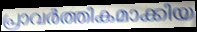
പ്രാവർത്തികമാക്കിയ